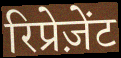
रिप्रेज़ेंट